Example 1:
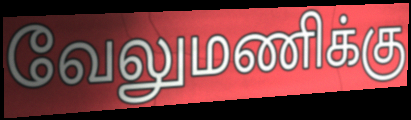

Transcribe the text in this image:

வேலுமணிக்கு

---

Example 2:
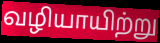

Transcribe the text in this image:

வழியாயிற்று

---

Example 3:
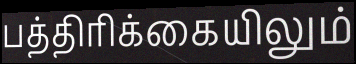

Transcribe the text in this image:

பத்திரிக்கையிலும்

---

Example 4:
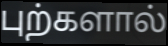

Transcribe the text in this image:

புற்களால்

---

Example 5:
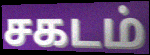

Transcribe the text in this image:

சகடம்